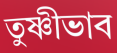
তুষ্ণীভাব